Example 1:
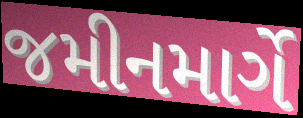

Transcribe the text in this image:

જમીનમાર્ગે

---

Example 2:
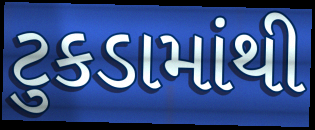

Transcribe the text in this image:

ટુકડામાંથી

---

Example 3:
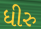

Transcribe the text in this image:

ધીરુ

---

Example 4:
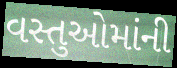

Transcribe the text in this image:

વસ્તુઓમાંની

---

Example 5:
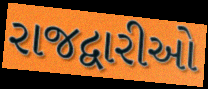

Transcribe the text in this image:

રાજદ્વારીઓ